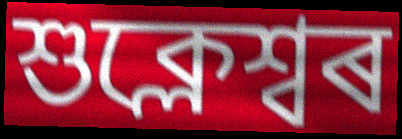
শুক্লেশ্বৰ